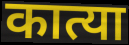
कात्या